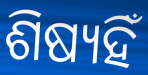
ଶିଷ୍ୟହିଁ